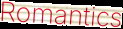
Romantics